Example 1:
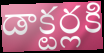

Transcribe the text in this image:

డాక్టర్లకి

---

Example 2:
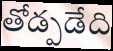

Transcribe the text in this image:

తోడ్పడేది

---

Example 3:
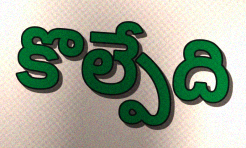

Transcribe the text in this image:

కొల్పేది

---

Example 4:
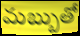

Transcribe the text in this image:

మబ్బుతో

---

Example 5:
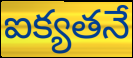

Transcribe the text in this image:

ఐక్యతనే